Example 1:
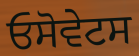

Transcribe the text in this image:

ਓਸੋਵੇਟਸ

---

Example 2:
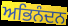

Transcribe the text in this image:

ਅਭਿਨੰਦਨ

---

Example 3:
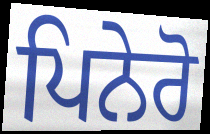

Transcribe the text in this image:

ਪਿਨੇਰੋ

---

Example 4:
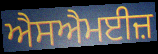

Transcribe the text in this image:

ਐਸਐਮਈਜ਼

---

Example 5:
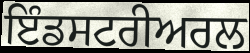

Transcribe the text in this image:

ਇੰਡਸਟਰੀਅਰਲ